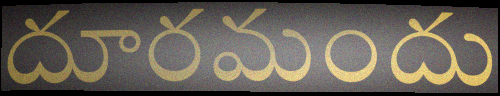
దూరమందు